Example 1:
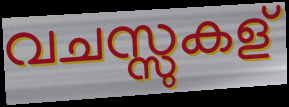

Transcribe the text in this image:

വചസ്സുകള്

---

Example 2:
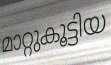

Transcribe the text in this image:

മാറ്റുകൂട്ടിയ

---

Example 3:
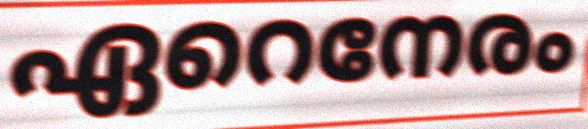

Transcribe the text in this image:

ഏറെനേരം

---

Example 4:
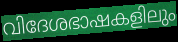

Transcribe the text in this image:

വിദേശഭാഷകളിലും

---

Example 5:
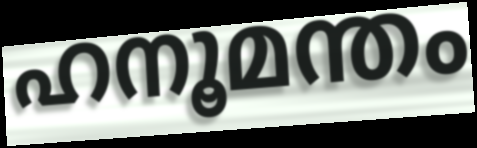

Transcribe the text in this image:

ഹനൂമന്തം